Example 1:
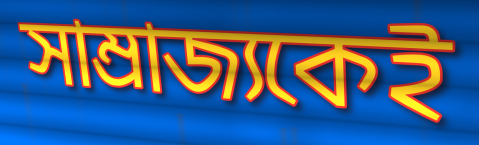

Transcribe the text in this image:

সাম্রাজ্যকেই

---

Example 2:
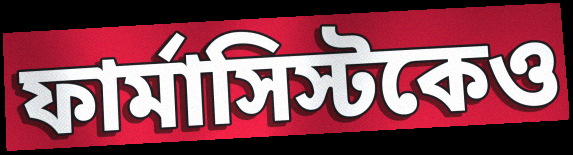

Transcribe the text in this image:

ফার্মাসিস্টকেও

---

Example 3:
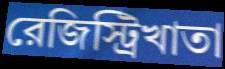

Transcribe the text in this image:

রেজিস্ট্রিখাতা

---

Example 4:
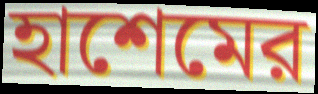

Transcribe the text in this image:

হাশেমের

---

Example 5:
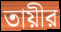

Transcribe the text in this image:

তায়ীর